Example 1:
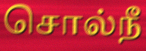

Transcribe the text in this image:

சொல்நீ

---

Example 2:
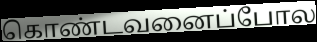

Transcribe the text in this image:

கொண்டவனைப்போல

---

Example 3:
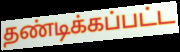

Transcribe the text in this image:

தண்டிக்கப்பட்ட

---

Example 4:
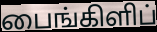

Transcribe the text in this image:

பைங்கிளிப்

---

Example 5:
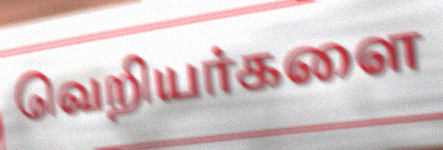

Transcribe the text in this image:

வெறியர்களை